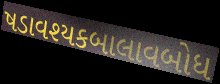
ષડાવશ્યકબાલાવબોધ